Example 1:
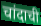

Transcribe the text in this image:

चांदाची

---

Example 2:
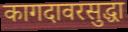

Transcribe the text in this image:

कागदावरसुद्धा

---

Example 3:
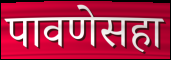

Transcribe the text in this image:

पावणेसहा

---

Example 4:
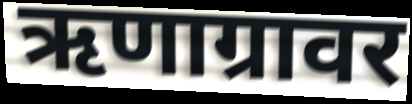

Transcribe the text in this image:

ऋणाग्रावर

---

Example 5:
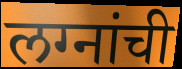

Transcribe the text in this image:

लग्नांची